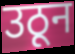
उठून